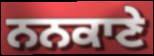
ਨਨਕਾਣੇ